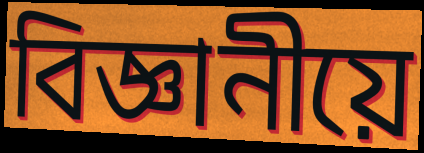
বিজ্ঞানীয়ে